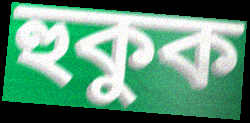
হুকুক